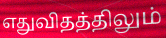
எதுவிதத்திலும்